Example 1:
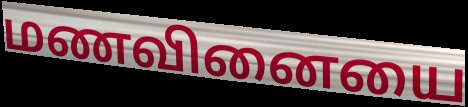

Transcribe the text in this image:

மணவினையை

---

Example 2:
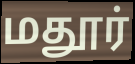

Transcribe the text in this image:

மதூர்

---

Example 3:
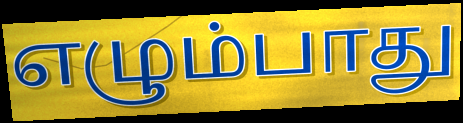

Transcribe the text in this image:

எழும்பாது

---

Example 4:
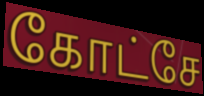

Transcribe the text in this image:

கோட்சே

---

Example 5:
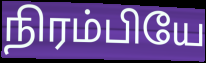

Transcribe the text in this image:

நிரம்பியே